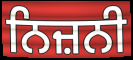
ਨਿਜ਼ਨੀ